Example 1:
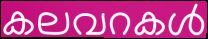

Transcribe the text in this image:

കലവറകൾ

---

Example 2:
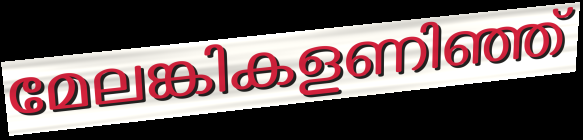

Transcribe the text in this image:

മേലങ്കികളണിഞ്ഞ്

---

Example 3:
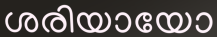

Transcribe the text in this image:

ശരിയായോ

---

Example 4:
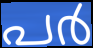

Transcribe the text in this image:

പർ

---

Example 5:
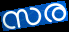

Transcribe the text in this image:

സര